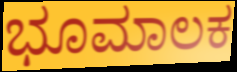
ಭೂಮಾಲಕ